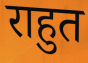
राहुत